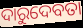
ଦାରୁଦେବତା